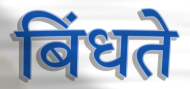
बिंधते